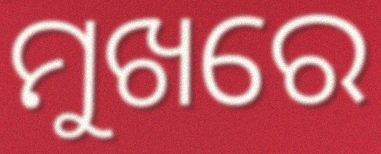
ମୁଖରେ